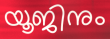
യൂജിനും